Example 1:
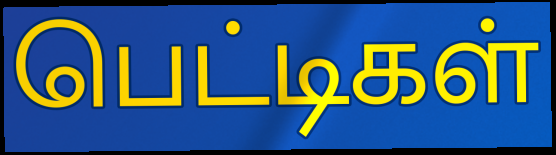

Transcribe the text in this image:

பெட்டிகள்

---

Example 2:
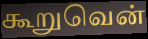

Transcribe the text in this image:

கூறுவென்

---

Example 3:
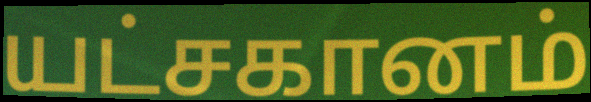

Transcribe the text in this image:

யட்சகானம்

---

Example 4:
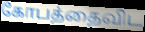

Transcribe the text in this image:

கோபத்தைவிட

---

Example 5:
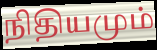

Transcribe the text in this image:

நிதியமும்